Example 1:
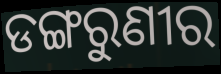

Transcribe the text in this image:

ଡଙ୍ଗରୁଣୀର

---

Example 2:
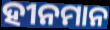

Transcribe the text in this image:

ହୀନମାନ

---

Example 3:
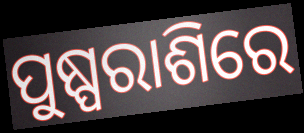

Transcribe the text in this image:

ପୁଷ୍ପରାଶିରେ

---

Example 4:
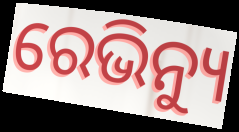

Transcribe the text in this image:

ରେଭିନ୍ୟୁ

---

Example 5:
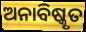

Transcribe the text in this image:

ଅନାବିଷ୍କୃତ